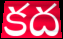
కద